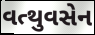
વત્થુવસેન